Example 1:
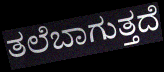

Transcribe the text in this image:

ತಲೆಬಾಗುತ್ತದೆ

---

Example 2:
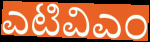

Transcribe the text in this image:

ಎಟಿವಿಎಂ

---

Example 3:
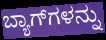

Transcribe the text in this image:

ಬ್ಯಾಗ್‌ಗಳನ್ನು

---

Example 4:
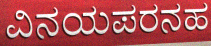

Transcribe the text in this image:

ವಿನಯಪರನಹ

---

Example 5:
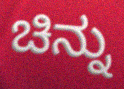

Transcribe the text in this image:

ಚಿನ್ನು